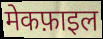
मेकफ़ाइल